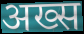
अख्स